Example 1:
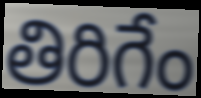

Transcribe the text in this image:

తిరిగేం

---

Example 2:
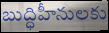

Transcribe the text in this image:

బుద్ధిహీనులకు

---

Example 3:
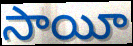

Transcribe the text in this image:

సాయీ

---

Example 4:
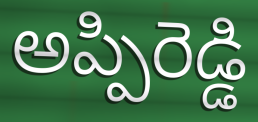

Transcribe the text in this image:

అప్పిరెడ్డి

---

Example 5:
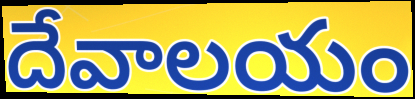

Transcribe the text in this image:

దేవాలయం